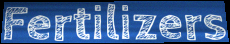
Fertilizers